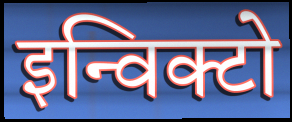
इन्विक्टो